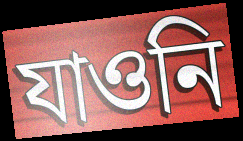
যাওনি